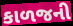
કાળજની